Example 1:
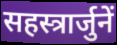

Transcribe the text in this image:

सहस्त्रार्जुनें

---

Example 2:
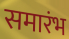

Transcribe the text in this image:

समारंभ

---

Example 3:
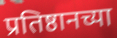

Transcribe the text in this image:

प्रतिष्ठानच्या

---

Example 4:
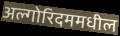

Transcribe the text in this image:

अल्गोरिदममधील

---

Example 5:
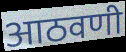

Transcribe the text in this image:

आठवणी